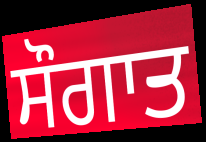
ਸੌਗਾਤ